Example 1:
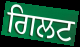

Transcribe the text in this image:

ਗਿਲਟ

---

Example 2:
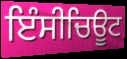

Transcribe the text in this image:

ਇੰਸੀਚਿਊਟ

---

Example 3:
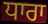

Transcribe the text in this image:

ਧਾਰਾ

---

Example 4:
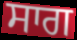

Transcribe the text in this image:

ਸਾਗ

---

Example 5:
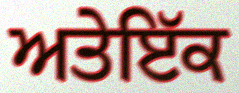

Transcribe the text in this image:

ਅਤੇਇੱਕ